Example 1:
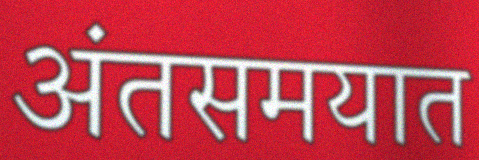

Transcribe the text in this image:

अंतसमयात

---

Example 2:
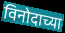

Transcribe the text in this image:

विनोदाच्या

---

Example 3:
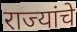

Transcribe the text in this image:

राज्यांचे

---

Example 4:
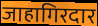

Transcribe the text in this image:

जाहागिरदार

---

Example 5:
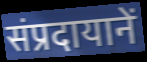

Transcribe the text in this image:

संप्रदायानें